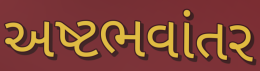
અષ્ટભવાંતર